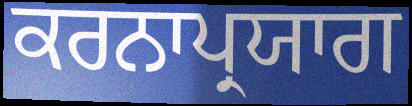
ਕਰਨਾਪ੍ਰਯਾਗ